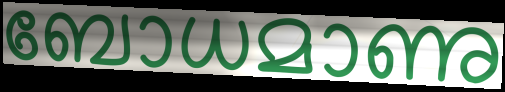
ബോധമാണു